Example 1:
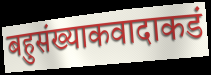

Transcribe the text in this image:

बहुसंख्याकवादाकडं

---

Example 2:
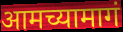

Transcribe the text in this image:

आमच्यामागं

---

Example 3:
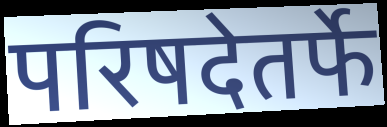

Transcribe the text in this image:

परिषदेतर्फे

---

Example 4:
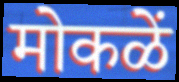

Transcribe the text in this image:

मोकळें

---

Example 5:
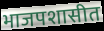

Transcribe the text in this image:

भाजपशासीत